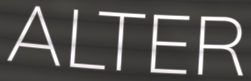
ALTER